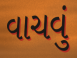
વાચવું